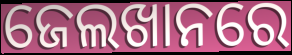
ଜେଲଖାନରେ